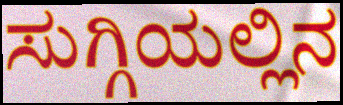
ಸುಗ್ಗಿಯಲ್ಲಿನ